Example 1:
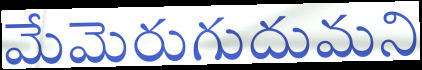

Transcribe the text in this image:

మేమెరుగుదుమని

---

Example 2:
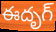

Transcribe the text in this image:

ఈదృగ్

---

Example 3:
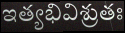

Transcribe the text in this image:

ఇత్యభివిశ్రుతః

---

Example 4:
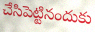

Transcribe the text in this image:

చేసిపెట్టినందుకు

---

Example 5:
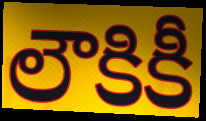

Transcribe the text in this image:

లౌకికీ